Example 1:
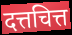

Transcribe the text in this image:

दत्तचित्त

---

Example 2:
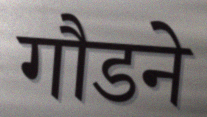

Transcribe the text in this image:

गौडने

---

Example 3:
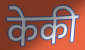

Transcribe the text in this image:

केकी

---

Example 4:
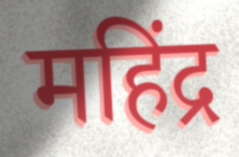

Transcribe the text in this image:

महिंद्र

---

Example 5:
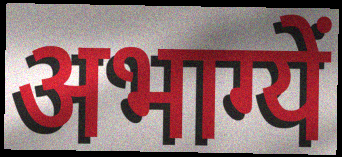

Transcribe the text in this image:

अभाग्यें